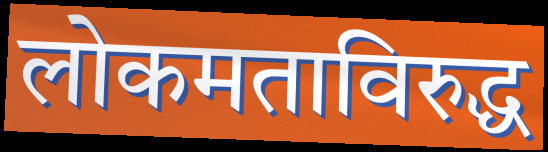
लोकमताविरुद्ध